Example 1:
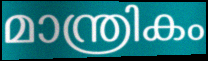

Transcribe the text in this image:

മാന്ത്രികം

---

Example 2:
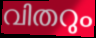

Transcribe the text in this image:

വിതറും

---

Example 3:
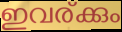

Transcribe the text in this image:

ഇവര്ക്കും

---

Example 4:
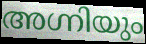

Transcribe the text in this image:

അഗ്നിയും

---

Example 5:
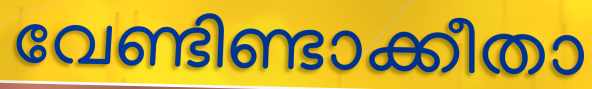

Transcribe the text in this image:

വേണ്ടിണ്ടാക്കീതാ